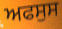
ਅਫਸੁਸ